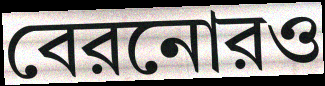
বেরনোরও